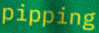
pipping